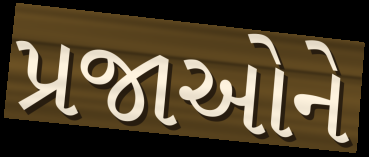
પ્રજાઓને